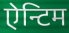
ऐन्टिम